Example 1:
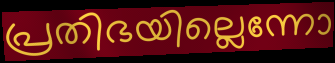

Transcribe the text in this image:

പ്രതിഭയില്ലെന്നോ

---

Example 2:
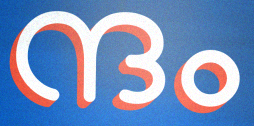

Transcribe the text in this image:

ന്ദം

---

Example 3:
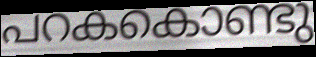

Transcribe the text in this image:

പറകകൊണ്ടു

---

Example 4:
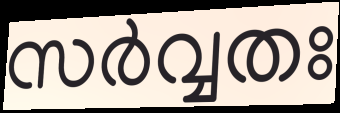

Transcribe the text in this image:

സർവ്വതഃ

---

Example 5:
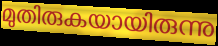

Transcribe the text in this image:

മുതിരുകയായിരുന്നു